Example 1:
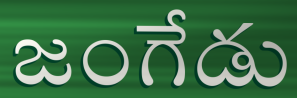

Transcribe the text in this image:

జంగేడు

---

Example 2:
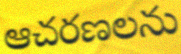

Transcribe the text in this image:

ఆచరణలను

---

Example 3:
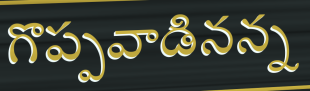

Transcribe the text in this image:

గొప్పవాడినన్న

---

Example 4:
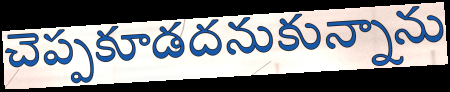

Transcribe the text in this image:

చెప్పకూడదనుకున్నాను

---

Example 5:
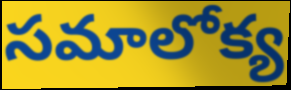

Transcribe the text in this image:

సమాలోక్య